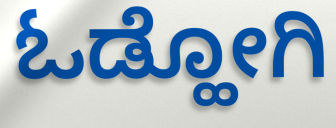
ಓಡ್ಹೋಗಿ